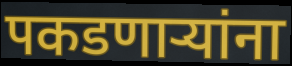
पकडणाऱ्यांना